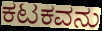
ಕಟಕವನು